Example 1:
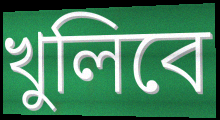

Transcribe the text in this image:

খুলিবে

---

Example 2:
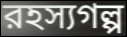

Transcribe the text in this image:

রহস্যগল্প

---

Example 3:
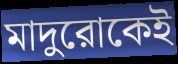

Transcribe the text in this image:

মাদুরোকেই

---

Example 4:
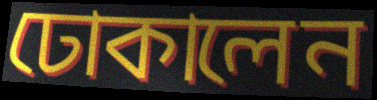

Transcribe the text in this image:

ঢোকালেন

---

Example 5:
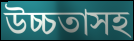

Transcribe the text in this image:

উচ্চতাসহ